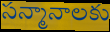
సన్మానాలకు